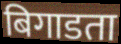
बिगाडता